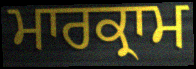
ਮਾਰਕ੍ਰਾਮ